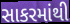
સાકરમાંથી